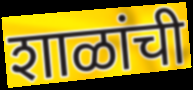
शाळांची